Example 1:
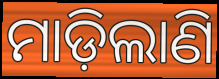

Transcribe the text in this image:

ମାଡ଼ିଲାଣି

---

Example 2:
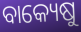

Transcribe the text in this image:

ବାକ୍ୟେଷୁ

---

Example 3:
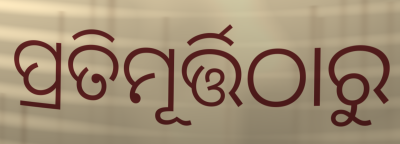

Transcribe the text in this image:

ପ୍ରତିମୂର୍ତ୍ତିଠାରୁ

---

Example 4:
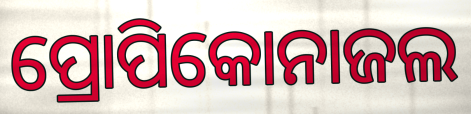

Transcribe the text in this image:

ପ୍ରୋପିକୋନାଜଲ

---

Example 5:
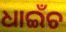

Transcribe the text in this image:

ଧାଇଁଚ